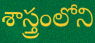
శాస్త్రంలోని